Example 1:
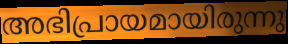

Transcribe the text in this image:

അഭിപ്രായമായിരുന്നു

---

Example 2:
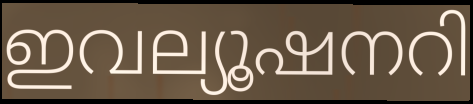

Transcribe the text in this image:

ഇവല്യൂഷനറി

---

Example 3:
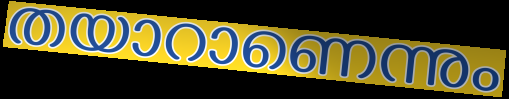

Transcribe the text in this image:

തയാറാണെന്നും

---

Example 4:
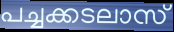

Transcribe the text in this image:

പച്ചക്കടലാസ്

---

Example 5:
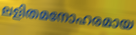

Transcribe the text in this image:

ലളിതമനോഹരമായ